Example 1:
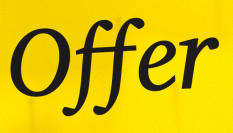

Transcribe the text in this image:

Offer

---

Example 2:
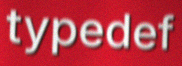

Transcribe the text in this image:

typedef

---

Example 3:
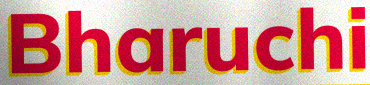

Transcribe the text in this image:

Bharuchi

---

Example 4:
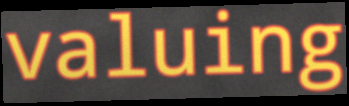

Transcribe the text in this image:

valuing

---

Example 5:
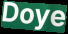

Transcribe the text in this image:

Doye